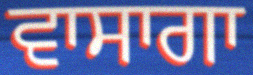
ਵਾਸਾਗਾ